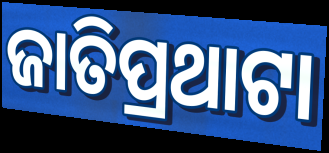
ଜାତିପ୍ରଥାଟା